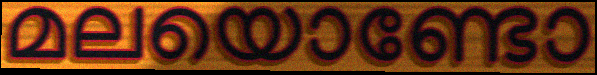
മലയൊണ്ടോ